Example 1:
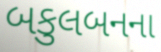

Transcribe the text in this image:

બકુલબનના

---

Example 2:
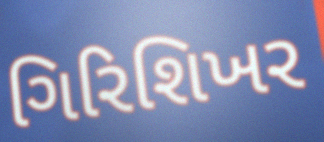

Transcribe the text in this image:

ગિરિશિખર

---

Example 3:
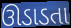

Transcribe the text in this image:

ઊડાડતા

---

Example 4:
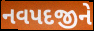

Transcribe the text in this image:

નવપદજીને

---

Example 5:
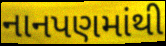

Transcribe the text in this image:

નાનપણમાંથી